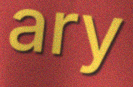
ary